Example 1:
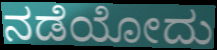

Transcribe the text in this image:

ನಡೆಯೋದು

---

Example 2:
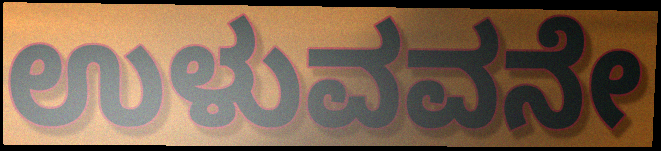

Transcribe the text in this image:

ಉಳುವವನೇ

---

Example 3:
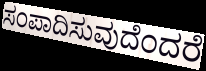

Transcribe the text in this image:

ಸಂಪಾದಿಸುವುದೆಂದರೆ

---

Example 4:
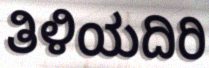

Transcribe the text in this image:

ತಿಳಿಯದಿರಿ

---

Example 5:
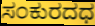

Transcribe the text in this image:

ಸಂಕುರದಧ